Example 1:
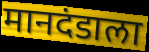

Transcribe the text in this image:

मानदंडाला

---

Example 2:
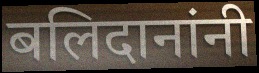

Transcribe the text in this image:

बलिदानांनी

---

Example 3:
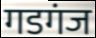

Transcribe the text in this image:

गडगंज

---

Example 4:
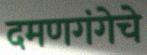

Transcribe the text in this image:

दमणगंगेचे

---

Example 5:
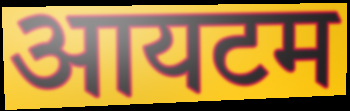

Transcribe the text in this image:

आयटम